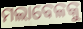
ମଲାବେଳକୁ